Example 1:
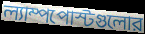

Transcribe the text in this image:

ল্যাম্পপোস্টগুলোর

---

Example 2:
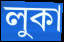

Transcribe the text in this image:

লুকা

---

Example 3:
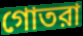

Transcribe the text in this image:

গোতরা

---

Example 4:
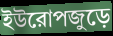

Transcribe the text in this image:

ইউরোপজুড়ে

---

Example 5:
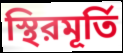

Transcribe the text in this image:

স্থিরমূর্তি